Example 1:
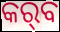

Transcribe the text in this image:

କର୍‌ବ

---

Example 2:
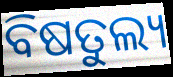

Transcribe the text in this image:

ବିଷତୁଲ୍ୟ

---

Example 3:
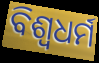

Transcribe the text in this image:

ବିଶ୍ବଧର୍ମ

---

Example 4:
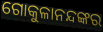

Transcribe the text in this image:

ଗୋକୁଳାନନ୍ଦଙ୍କର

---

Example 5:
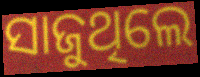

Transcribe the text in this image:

ସାଜୁଥିଲେ